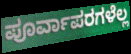
ಪೂರ್ವಾಪರಗಳೆಲ್ಲ